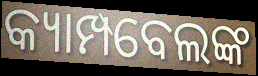
କ୍ୟାମ୍ପବେଲଙ୍କ